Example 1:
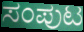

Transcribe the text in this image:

ಸಂಪುಟ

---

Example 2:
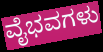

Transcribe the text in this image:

ವೈಭವಗಳು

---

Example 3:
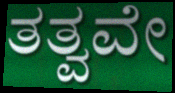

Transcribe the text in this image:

ತತ್ವವೇ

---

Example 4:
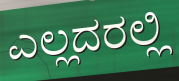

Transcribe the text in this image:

ಎಲ್ಲದರಲ್ಲಿ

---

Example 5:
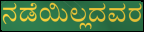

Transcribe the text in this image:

ನಡೆಯಿಲ್ಲದವರ